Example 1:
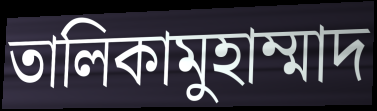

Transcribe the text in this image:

তালিকামুহাম্মাদ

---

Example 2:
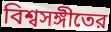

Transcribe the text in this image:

বিশ্বসঙ্গীতের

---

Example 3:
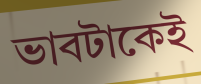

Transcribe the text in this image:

ভাবটাকেই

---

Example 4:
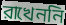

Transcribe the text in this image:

রাখেননি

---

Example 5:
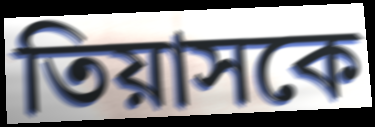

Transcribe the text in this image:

তিয়াসকে